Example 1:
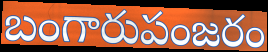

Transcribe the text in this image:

బంగారుపంజరం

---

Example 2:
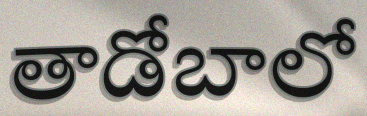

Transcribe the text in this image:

తాడోబాలో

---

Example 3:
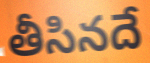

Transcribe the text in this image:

తీసినదే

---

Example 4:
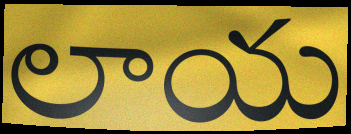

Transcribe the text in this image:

లాయ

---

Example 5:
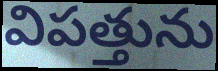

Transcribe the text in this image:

విపత్తును